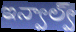
ఇన్వాల్వ్